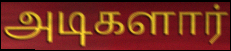
அடிகளார்